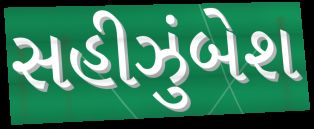
સહીઝુંબેશ